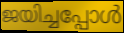
ജയിച്ചപ്പോൾ